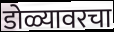
डोळ्यावरचा